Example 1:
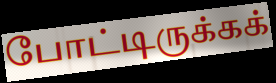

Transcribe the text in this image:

போட்டிருக்கக்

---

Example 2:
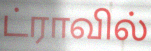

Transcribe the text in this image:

ட்ராவில்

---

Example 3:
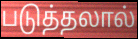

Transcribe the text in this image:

படுத்தலால்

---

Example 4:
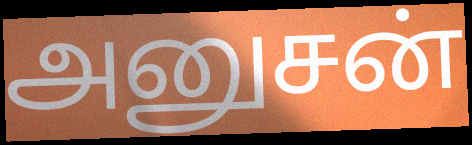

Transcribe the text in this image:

அனுசன்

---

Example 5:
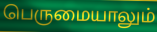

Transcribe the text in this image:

பெருமையாலும்